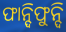
ଫାନ୍ଦିଫୁନ୍ଦି